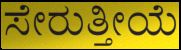
ಸೇರುತ್ತೀಯೆ